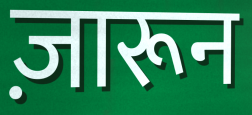
ज़ारून